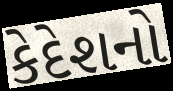
કેદેશનો